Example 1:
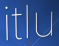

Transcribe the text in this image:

itlu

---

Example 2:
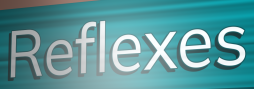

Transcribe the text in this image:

Reflexes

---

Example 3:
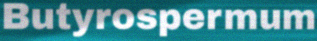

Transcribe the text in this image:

Butyrospermum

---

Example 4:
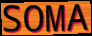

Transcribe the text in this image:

SOMA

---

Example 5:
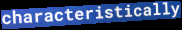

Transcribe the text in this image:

characteristically